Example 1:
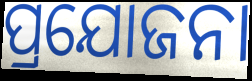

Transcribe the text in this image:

ପ୍ରଯୋଜନା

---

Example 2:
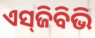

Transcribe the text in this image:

ଏସ୍‌ଜିବିଭି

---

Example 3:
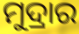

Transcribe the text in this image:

ମୁଦ୍ରାର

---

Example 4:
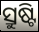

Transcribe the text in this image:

ସ୍ରୁଷ୍ଟି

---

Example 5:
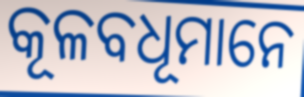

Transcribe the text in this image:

କୂଳବଧୂମାନେ